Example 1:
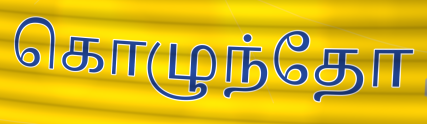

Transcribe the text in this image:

கொழுந்தோ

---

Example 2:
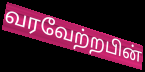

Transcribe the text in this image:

வரவேற்றபின்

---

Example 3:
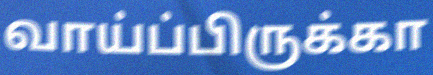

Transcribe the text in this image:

வாய்ப்பிருக்கா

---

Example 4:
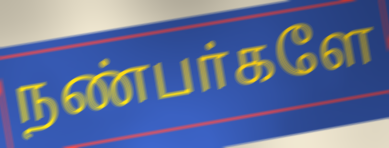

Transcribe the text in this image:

நண்பர்களே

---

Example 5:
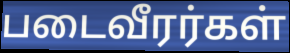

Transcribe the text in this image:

படைவீரர்கள்